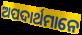
ଅପଦାର୍ଥମାନେ